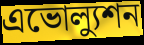
এভোল্যুশন